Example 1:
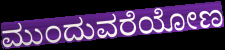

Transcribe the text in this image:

ಮುಂದುವರೆಯೋಣ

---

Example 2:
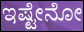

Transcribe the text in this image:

ಇಷ್ಟೇನೋ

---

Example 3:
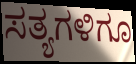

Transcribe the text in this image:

ಸತ್ಯಗಳಿಗೂ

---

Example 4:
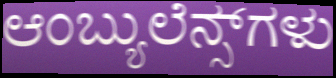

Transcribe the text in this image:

ಆಂಬ್ಯುಲೆನ್ಸ್‌ಗಳು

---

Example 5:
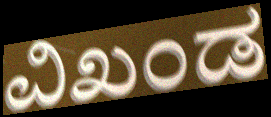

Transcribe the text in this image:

ವಿಖಂಡ